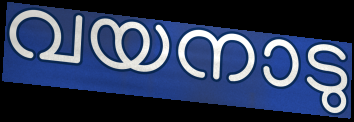
വയനാടു